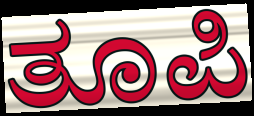
ತೂಪಿ